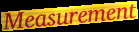
Measurement